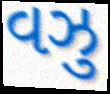
વઝુ